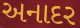
અનાદર